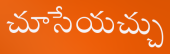
చూసేయచ్చు